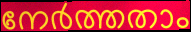
നേർത്തതാം